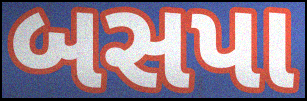
બસપા